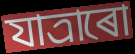
যাত্ৰাৰো